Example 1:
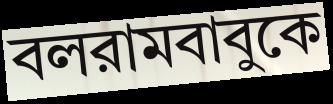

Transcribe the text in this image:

বলরামবাবুকে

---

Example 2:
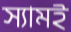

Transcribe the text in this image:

স্যামই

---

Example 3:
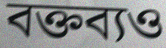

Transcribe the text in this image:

বক্তব্যও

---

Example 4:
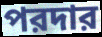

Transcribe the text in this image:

পরদার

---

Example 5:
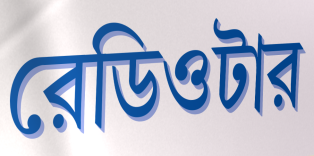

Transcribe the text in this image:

রেডিওটার